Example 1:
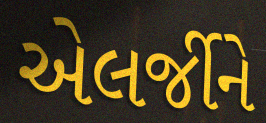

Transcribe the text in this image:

એલર્જીને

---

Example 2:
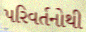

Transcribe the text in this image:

પરિવર્તનોથી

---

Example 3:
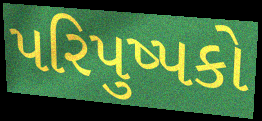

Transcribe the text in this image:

પરિપુષ્પકો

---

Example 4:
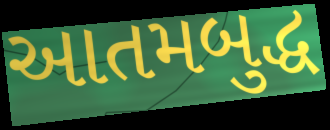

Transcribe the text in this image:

આતમબુદ્ધ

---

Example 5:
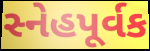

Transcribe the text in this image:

સ્નેહપૂર્વક